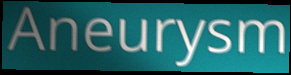
Aneurysm